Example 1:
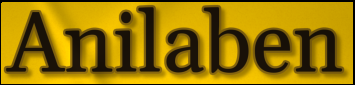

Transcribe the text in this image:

Anilaben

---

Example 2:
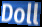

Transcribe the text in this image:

Doll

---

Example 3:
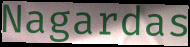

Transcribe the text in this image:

Nagardas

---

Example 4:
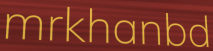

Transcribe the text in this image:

mrkhanbd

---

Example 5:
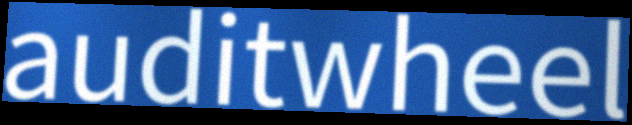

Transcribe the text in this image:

auditwheel